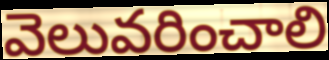
వెలువరించాలి